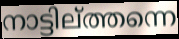
നാട്ടില്ത്തന്നെ